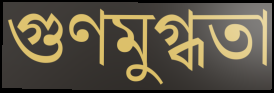
গুণমুগ্ধতা